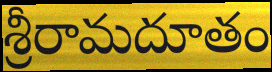
శ్రీరామదూతం